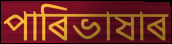
পাৰিভাষাৰ